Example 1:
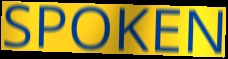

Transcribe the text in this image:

SPOKEN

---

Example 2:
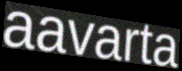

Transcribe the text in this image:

aavarta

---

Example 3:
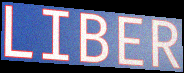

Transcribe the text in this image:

LIBER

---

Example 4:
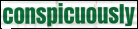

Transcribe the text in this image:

conspicuously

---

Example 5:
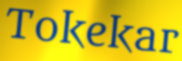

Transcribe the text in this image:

Tokekar